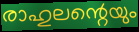
രാഹുലന്റെയും